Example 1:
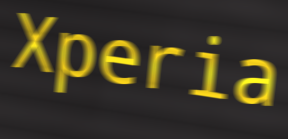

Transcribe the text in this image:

Xperia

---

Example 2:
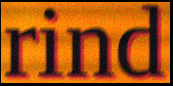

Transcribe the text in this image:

rind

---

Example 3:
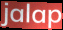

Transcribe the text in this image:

jalap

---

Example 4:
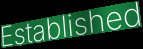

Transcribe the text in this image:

Established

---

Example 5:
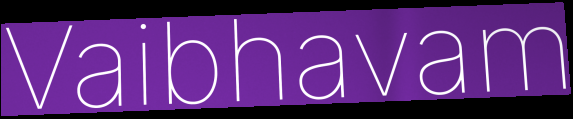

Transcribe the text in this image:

Vaibhavam